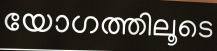
യോഗത്തിലൂടെ